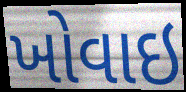
ખોવાઇ